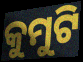
କୁମୁଟି